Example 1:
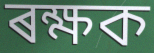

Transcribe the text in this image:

ৰক্ষক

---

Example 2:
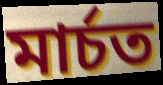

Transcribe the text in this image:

মাৰ্চত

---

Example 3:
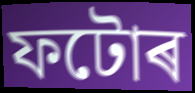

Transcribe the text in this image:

ফটোৰ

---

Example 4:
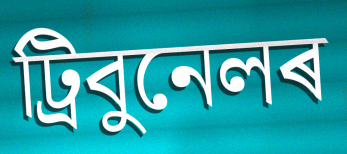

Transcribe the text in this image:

ট্ৰিবুনেলৰ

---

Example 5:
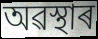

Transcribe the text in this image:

অৱস্থাৰ